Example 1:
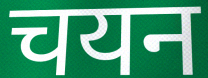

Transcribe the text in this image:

चयन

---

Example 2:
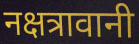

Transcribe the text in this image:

नक्षत्रावानी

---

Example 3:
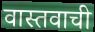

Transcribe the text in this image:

वास्तवाची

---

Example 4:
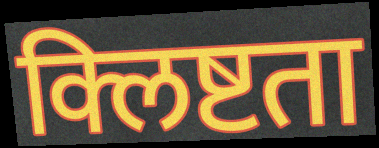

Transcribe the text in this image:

क्‍लिष्टता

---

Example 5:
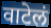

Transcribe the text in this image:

वाटेलं